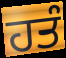
ਹਤੰ